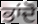
ਭਾਂਦੋ